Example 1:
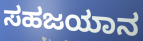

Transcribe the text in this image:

ಸಹಜಯಾನ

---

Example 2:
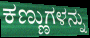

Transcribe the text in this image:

ಕಣ್ಣುಗಳನ್ನು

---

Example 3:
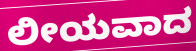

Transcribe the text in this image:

ಲೀಯವಾದ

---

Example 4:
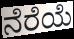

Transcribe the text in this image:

ನೆರೆಯೆ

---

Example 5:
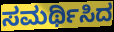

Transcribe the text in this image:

ಸಮರ್ಥಿಸಿದ